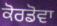
ਕੋਰਡੋਵਾ